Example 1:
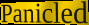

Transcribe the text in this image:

Panicled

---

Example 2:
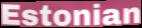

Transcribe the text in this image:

Estonian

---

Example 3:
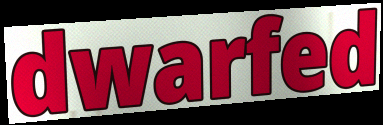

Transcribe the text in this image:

dwarfed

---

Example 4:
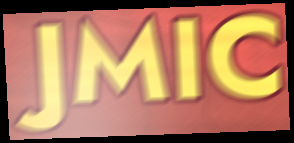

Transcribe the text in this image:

JMIC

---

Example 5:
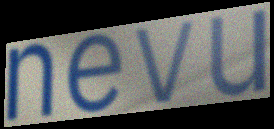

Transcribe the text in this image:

nevu